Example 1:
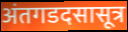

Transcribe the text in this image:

अंतगडदसासूत्र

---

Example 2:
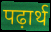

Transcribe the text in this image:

पढ़ार्थ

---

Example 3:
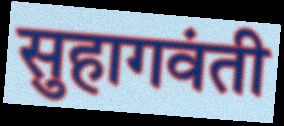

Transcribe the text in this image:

सुहागवंती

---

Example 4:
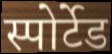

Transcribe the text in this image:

स्पोर्टेड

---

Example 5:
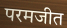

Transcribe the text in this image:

परमजीत